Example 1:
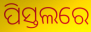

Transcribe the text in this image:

ପିସ୍ତଲରେ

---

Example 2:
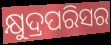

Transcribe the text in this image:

କ୍ଷୁଦ୍ରପରିସର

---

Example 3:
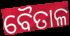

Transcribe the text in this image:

ବୈତାଳ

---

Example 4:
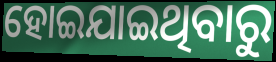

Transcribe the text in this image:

ହୋଇଯାଇଥିବାରୁ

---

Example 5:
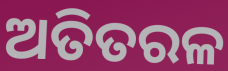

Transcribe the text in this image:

ଅତିତରଳ